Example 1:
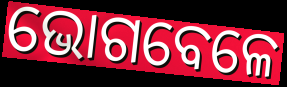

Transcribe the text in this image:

ଭୋଗବେଳେ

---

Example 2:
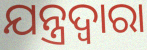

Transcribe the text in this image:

ଯନ୍ତ୍ରଦ୍ଵାରା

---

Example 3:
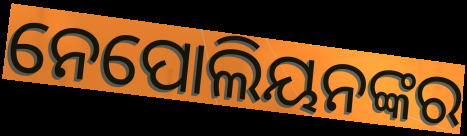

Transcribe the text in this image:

ନେପୋଲିୟନଙ୍କର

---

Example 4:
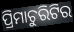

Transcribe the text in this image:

ପ୍ରିମାଚୁରିଟିର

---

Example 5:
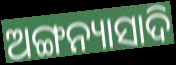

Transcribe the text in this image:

ଅଙ୍ଗନ୍ୟାସାଦି